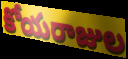
కోయరాజుల